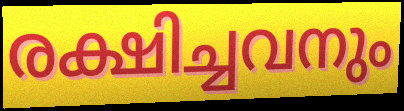
രക്ഷിച്ചവനും